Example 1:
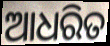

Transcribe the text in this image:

ଆଧରିତ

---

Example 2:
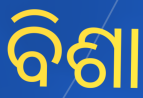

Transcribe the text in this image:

ବିଶା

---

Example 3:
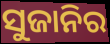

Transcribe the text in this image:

ସୁଜାନିର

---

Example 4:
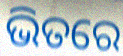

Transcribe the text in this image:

ଭିତରେ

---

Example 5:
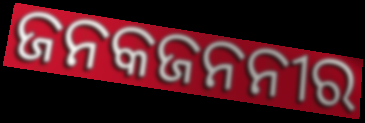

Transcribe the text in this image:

ଜନକଜନନୀର